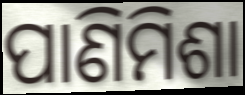
ପାଣିମିଶା